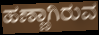
ಹಣ್ಣಾಗಿರುವ